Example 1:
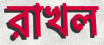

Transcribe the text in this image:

রাখল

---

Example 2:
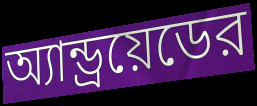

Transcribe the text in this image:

অ্যান্ড্রয়েডের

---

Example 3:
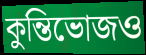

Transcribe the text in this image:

কুন্তিভোজও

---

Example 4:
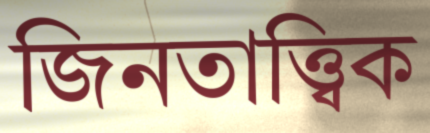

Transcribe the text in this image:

জিনতাত্ত্বিক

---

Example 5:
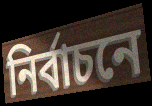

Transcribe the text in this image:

নির্বাচনে